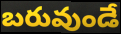
బరువుండే